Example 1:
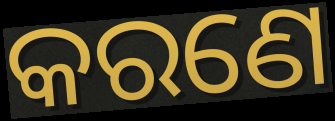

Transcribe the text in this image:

କରଣେ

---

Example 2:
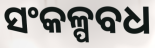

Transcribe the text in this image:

ସଂକଳ୍ପବଧ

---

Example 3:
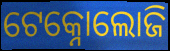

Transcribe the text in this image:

ଟେକ୍ନୋଲୋଜି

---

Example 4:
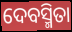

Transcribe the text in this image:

ଦେବସ୍ମିତା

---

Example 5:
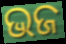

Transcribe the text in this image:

ଭଜ